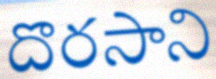
దొరసాని